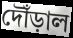
দৌঁড়াল